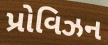
પ્રોવિઝન